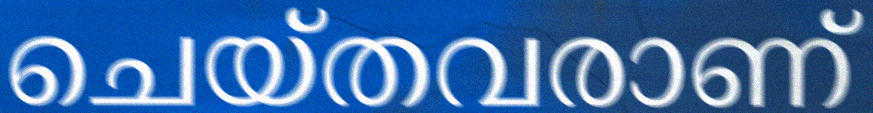
ചെയ്തവരാണ്